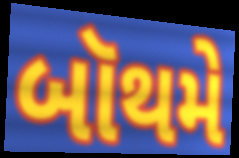
બૉથમે